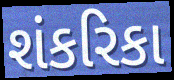
શંકરિકા